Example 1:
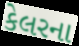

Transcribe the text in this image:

કેલરના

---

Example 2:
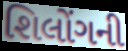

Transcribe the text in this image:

શિલોંગની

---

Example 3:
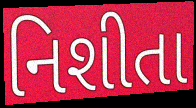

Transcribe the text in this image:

નિશીતા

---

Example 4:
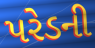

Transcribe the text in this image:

પરેડની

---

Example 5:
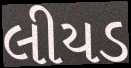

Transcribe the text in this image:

લીયડ